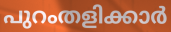
പുറംതളിക്കാർ